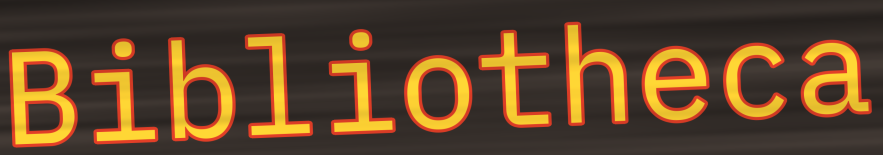
Bibliotheca